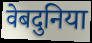
वेबदुनिया